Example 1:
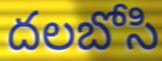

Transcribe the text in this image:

దలబోసి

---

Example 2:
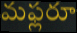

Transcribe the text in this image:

మఫ్లరూ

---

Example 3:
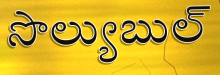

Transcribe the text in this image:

సొల్యుబుల్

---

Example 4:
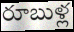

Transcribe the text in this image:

రూబుళ్ల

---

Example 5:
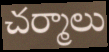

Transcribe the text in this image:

చర్మాలు